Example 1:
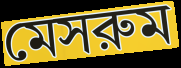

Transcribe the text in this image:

মেসরুম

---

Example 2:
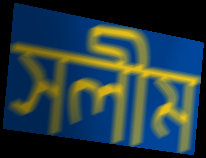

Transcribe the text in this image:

সলীম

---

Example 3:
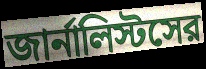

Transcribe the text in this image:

জার্নালিস্টসের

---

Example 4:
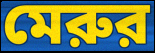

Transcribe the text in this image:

মেরুর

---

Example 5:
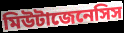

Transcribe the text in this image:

মিউটাজেনেসিস